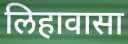
लिहावासा